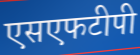
एसएफटीपी